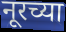
नूरच्या